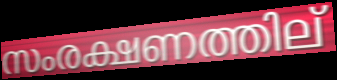
സംരക്ഷണത്തില്